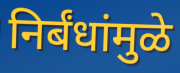
निर्बंधांमुळे